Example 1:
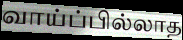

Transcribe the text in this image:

வாய்ப்பில்லாத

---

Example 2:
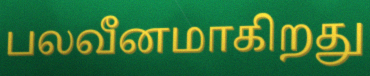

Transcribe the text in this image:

பலவீனமாகிறது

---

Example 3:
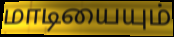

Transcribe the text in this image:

மாடியையும்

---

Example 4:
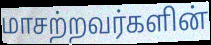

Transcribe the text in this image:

மாசற்றவர்களின்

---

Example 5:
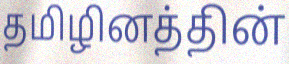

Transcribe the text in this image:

தமிழினத்தின்